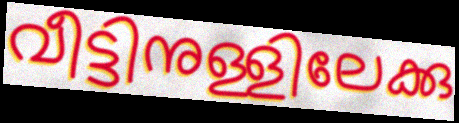
വീട്ടിനുള്ളിലേക്കു